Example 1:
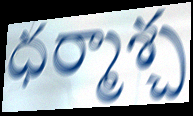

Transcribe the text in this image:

ధర్మాశ్చ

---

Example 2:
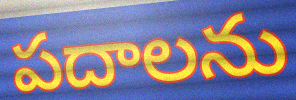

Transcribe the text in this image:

పదాలను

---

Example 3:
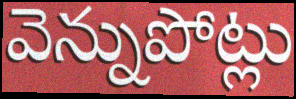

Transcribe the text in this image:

వెన్నుపోట్లు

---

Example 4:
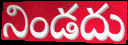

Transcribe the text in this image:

నిండదు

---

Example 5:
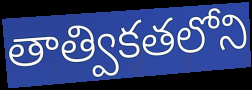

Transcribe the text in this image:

తాత్వికతలోని